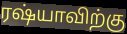
ரஷ்யாவிற்கு